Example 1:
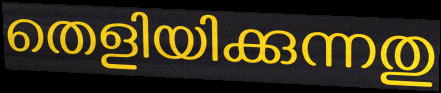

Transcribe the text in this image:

തെളിയിക്കുന്നതു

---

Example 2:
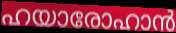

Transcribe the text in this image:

ഹയാരോഹാൻ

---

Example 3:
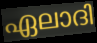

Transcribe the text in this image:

ഏലാദി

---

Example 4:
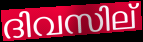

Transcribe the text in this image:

ദിവസില്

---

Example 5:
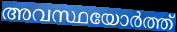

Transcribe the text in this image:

അവസ്ഥയോർത്ത്